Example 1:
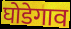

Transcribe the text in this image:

घोडेगाव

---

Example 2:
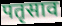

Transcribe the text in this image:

पतृसाव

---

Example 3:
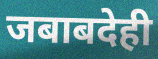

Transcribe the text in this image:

जबाबदेही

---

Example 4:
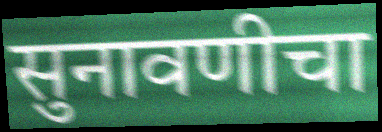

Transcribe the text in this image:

सुनावणीचा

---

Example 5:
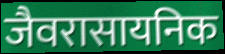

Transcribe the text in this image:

जैवरासायनिक